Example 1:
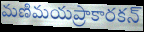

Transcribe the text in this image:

మణిమయప్రాకారకన్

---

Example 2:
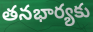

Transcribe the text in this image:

తనభార్యకు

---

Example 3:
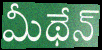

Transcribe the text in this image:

మీథేన్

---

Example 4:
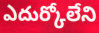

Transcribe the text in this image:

ఎదుర్కోలేని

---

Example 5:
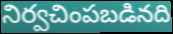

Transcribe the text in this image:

నిర్వచింపబడినది